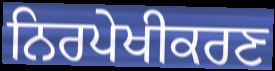
ਨਿਰਪੇਖੀਕਰਣ